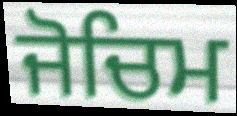
ਜੋਚਿਮ